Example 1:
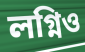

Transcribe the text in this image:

লগ্নিও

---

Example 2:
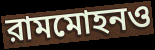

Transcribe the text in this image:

রামমোহনও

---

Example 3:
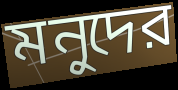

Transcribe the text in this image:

মনুদের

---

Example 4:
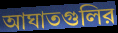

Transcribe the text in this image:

আঘাতগুলির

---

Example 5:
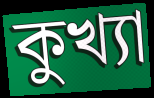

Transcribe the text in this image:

কুখ্যা